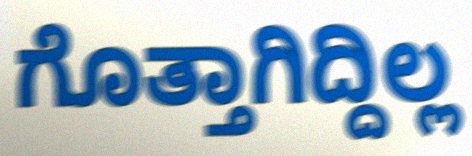
ಗೊತ್ತಾಗಿದ್ದಿಲ್ಲ